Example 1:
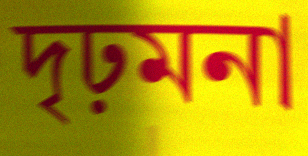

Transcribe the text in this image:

দৃঢ়মনা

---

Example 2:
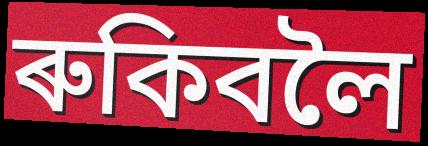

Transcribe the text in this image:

ৰুকিবলৈ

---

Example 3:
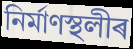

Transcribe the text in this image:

নিৰ্মাণস্থলীৰ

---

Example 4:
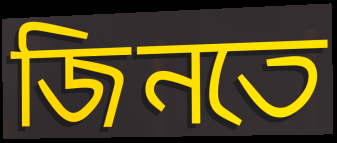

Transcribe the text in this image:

জিনতে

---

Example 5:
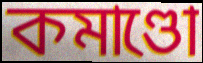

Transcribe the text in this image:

কমাণ্ডো